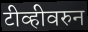
टीव्हीवरुन